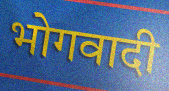
भोगवादी